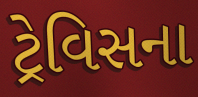
ટ્રેવિસના